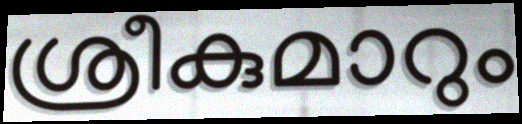
ശ്രീകുമാറും